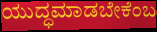
ಯುದ್ಧಮಾಡಬೇಕೆಂಬ